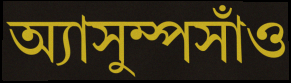
অ্যাসুম্পসাঁও